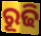
ରୂଢି